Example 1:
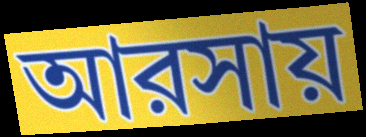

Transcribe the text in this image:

আরসায়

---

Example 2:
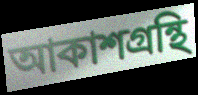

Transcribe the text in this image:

আকাশগ্রন্থি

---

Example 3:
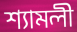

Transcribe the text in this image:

শ্যামলী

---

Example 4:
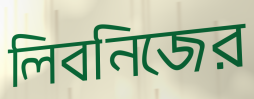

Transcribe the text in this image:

লিবনিজের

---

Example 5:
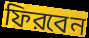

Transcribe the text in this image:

ফিরবেন